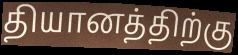
தியானத்திற்கு